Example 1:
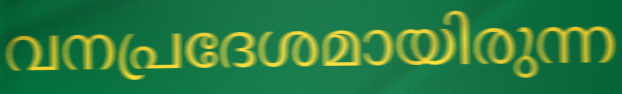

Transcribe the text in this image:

വനപ്രദേശമായിരുന്ന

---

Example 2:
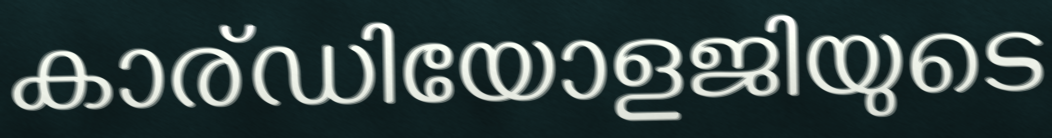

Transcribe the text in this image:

കാര്ഡിയോളജിയുടെ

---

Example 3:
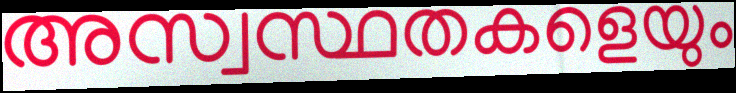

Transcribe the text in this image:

അസ്വസ്ഥതകളെയും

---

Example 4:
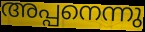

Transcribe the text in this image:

അപ്പനെന്നു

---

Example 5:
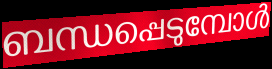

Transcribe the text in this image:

ബന്ധപ്പെടുമ്പോൾ